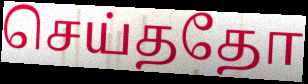
செய்ததோ